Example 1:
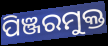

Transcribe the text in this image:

ପିଞ୍ଜରମୁକ୍ତ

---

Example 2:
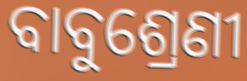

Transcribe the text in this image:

ବାବୁଶ୍ରେଣୀ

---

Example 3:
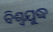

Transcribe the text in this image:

ବିଶ୍ୱଯୁଦ୍ଧ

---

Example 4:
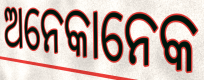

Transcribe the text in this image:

ଅନେକାନେକ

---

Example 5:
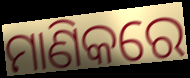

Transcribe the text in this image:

ମାଣିକରେ